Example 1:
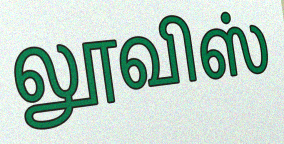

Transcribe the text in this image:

லூவிஸ்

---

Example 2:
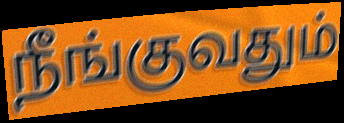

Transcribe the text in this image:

நீங்குவதும்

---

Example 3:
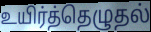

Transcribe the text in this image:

உயிர்த்தெழுதல்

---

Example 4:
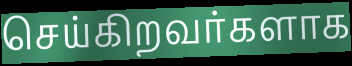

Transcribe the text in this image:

செய்கிறவர்களாக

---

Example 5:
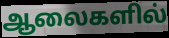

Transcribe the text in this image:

ஆலைகளில்